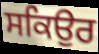
ਸਕਿਉਰ